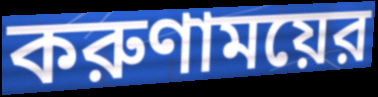
করুণাময়ের